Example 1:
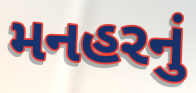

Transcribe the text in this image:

મનહરનું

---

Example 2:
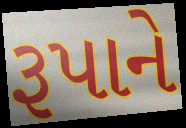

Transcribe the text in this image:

રૂપાને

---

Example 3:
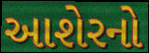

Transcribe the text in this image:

આશેરનો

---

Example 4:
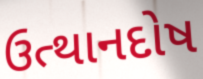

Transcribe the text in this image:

ઉત્થાનદોષ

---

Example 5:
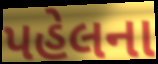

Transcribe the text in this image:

પહેલના